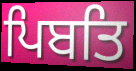
ਪਿਬਤਿ